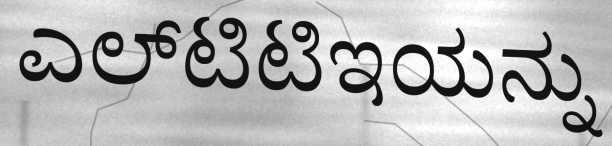
ಎಲ್‌ಟಿಟಿಇಯನ್ನು